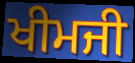
ਖੀਮਜੀ